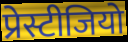
प्रेस्टीजियो